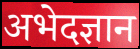
अभेदज्ञान